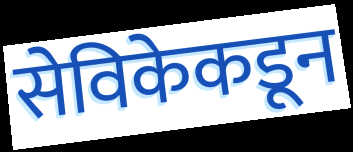
सेविकेकडून